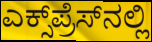
ಎಕ್ಸ್‌ಪ್ರೆಸ್‌ನಲ್ಲಿ